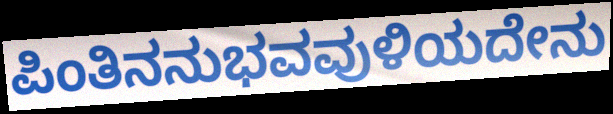
ಪಿಂತಿನನುಭವವುಳಿಯದೇನು